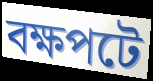
বক্ষপটে